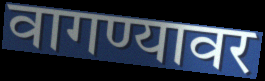
वागण्यावर